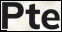
Pte